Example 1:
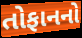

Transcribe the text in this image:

તોફાનનો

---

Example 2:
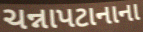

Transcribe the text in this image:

ચન્નાપટાનાના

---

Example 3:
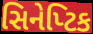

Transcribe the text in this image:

સિનેપ્ટિક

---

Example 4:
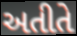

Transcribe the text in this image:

અતીતે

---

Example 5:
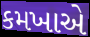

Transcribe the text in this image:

કમખાએ